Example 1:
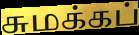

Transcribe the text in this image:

சுமக்கப்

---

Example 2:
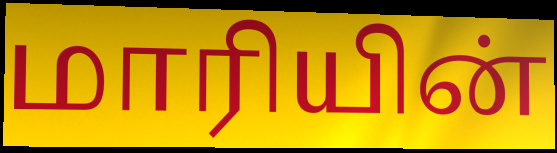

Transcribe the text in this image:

மாரியின்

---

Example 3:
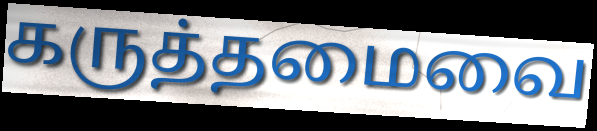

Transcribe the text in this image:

கருத்தமைவை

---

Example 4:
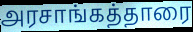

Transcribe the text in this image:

அரசாங்கத்தாரை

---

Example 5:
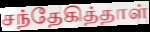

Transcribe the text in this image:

சந்தேகித்தாள்